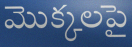
మొక్కలపై